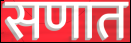
सणात